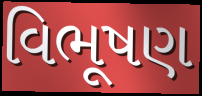
વિભૂષણ